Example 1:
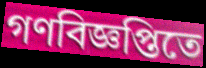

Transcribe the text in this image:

গণবিজ্ঞপ্তিতে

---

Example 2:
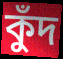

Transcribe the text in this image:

কুঁদ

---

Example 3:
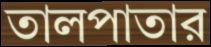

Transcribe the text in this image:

তালপাতার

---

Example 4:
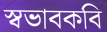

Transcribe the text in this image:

স্বভাবকবি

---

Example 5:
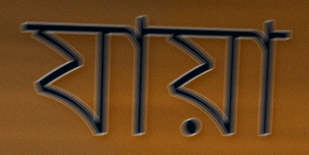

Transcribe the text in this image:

যায়া